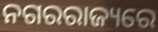
ନଗରରାଜ୍ୟରେ